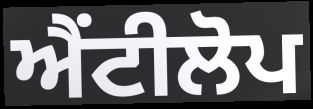
ਐਂਟੀਲੋਪ